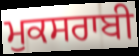
ਮੁਕਸਰਾਬੀ